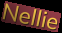
Nellie